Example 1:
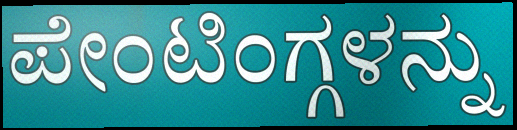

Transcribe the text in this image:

ಪೇಂಟಿಂಗ್ಗಳನ್ನು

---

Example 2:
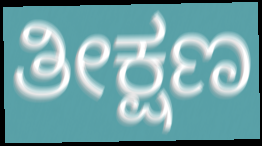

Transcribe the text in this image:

ತೀಕ್ಷಣ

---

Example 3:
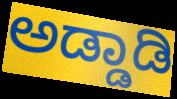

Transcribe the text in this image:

ಅಡ್ಡಾಡಿ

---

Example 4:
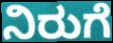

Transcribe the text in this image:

ನಿರುಗೆ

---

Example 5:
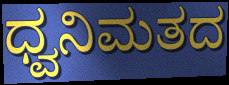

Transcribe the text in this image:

ಧ್ವನಿಮತದ